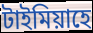
টাইমিয়াহে